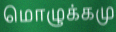
மொழுக்கமு